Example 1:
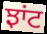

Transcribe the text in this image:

ਝਾਂਟ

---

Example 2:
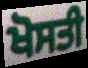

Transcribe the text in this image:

ਖੋਸਤੀ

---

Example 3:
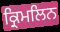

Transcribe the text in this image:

ਕ੍ਰਿਮਲਿਨ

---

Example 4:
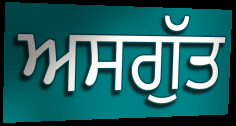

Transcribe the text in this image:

ਅਸਗੁੱਤ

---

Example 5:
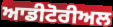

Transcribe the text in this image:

ਆਡੀਟੋਰੀਅਲ